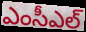
ఎంసీఎల్